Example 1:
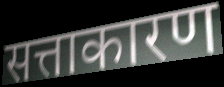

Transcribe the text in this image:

सत्ताकारण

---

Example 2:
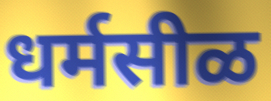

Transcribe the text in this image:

धर्मसीळ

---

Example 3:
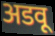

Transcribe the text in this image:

अडवू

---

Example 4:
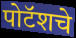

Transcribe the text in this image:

पोटॅशचे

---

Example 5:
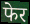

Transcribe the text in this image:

फेर